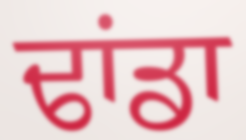
ਢਾਂਡਾ